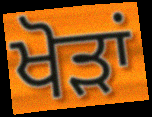
ਖੋੜਾਂ